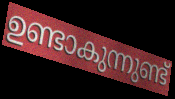
ഉണ്ടാകുന്നുണ്ട്